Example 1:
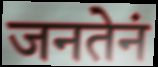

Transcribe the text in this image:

जनतेनं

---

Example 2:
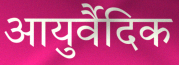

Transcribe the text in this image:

आयुर्वैदिक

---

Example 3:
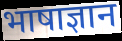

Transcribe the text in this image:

भाषाज्ञान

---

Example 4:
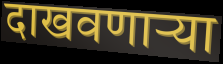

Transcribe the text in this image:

दाखवणाऱ्या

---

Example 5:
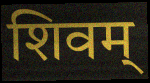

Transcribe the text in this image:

शिवम्